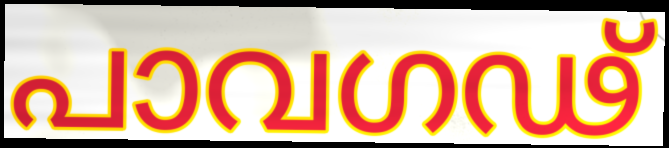
പാവഗഢ്